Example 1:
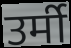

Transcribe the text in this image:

उर्मी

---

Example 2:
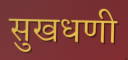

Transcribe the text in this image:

सुखधणी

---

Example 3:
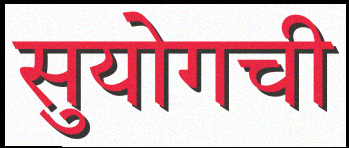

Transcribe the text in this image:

सुयोगची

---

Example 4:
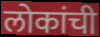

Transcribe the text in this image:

लोकांची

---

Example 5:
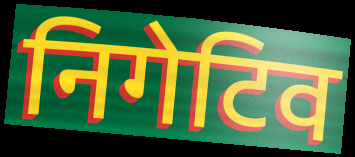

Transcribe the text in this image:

निगेटिव